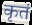
कृतं